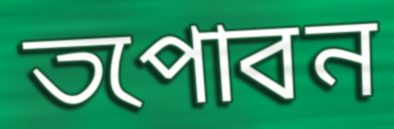
তপোবন